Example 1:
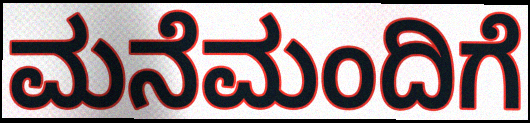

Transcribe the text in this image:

ಮನೆಮಂದಿಗೆ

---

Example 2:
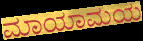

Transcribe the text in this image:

ಮಾಯಾಮಯ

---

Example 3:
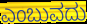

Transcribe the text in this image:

ಎಂಬುವದು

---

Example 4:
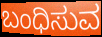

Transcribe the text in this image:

ಬಂಧಿಸುವ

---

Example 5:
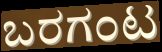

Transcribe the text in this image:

ಬರಗಂಟ